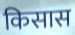
किसास